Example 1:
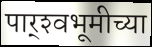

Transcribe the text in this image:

पार्श्वभूमीच्या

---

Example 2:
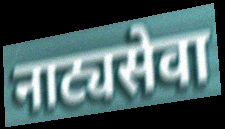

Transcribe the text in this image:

नाट्यसेवा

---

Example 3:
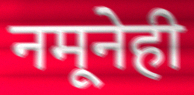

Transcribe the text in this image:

नमूनेही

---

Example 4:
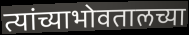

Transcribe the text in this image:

त्यांच्याभोवतालच्या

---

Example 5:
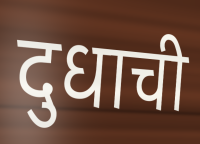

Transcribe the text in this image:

दुधाची